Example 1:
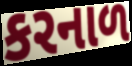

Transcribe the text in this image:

કરનાળ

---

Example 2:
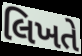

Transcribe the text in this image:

લિખતે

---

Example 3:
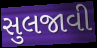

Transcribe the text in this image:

સુલજાવી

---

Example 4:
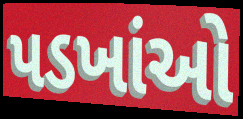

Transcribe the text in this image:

પડખાંઓ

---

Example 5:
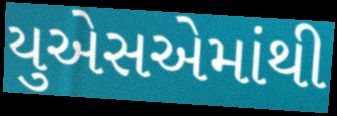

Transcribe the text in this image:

યુએસએમાંથી